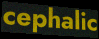
cephalic